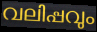
വലിപ്പവും